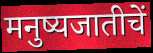
मनुष्यजातीचें